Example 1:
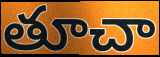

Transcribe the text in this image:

తూచా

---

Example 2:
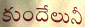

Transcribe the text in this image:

కుందేలునీ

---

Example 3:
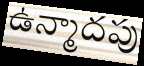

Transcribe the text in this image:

ఉన్మాదపు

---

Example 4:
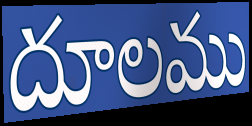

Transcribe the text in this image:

దూలము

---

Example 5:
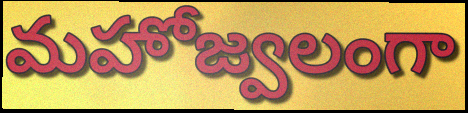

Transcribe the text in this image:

మహోజ్వలంగా